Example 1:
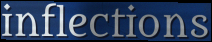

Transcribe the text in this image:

inflections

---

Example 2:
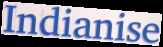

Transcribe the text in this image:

Indianise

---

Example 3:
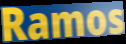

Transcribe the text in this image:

Ramos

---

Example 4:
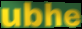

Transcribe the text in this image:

ubhe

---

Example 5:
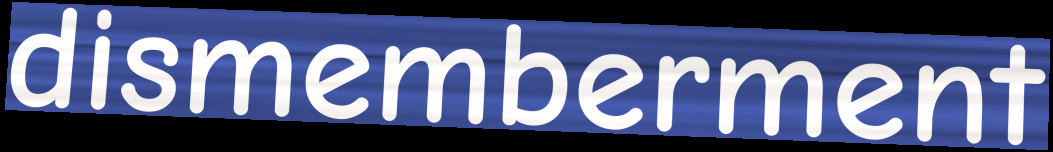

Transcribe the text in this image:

dismemberment